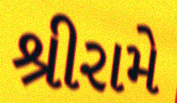
શ્રીરામે